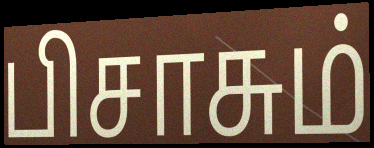
பிசாசும்